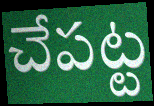
చేపట్ట